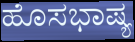
ಹೊಸಭಾಷ್ಯ